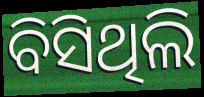
ବିସିଥିଲି